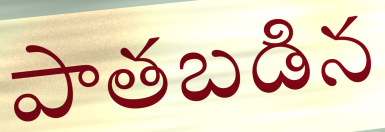
పాతబడిన